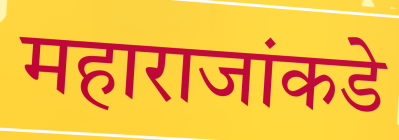
महाराजांकडे